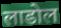
लाडोल